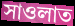
সাওলাত